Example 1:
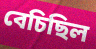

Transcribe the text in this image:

বেচিছিল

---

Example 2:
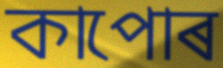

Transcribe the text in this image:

কাপোৰ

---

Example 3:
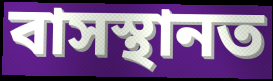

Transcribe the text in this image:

বাসস্থানত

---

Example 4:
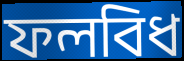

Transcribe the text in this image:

ফলবিধ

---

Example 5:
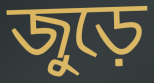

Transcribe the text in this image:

জুড়ে